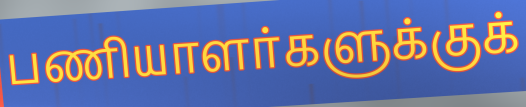
பணியாளர்களுக்குக்